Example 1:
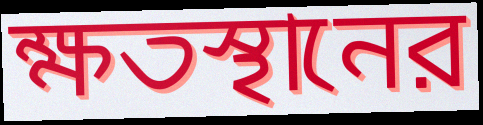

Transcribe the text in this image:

ক্ষতস্থানের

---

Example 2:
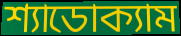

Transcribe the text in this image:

শ্যাডোক্যাম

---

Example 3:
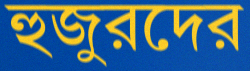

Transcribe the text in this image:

হুজুরদের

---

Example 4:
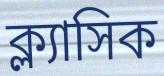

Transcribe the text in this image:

ক্ল্যাসিক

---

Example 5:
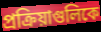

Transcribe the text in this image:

প্রক্রিয়াগুলিকে